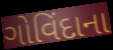
ગોવિંદાના